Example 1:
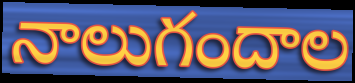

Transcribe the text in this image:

నాలుగందాల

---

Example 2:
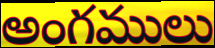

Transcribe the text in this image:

అంగములు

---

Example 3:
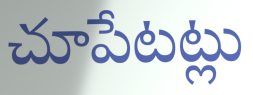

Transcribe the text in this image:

చూపేటట్లు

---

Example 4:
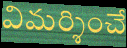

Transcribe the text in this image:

విమర్శించే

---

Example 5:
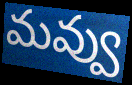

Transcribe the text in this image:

మవ్వు